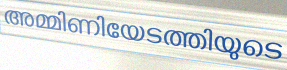
അമ്മിണിയേടത്തിയുടെ